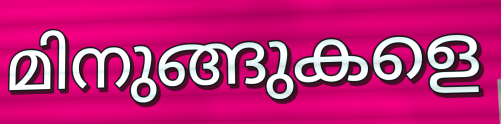
മിനുങ്ങുകളെ